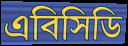
এবিসিডি